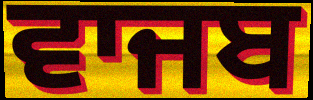
ਵਾਜਬ